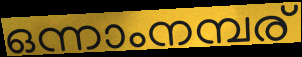
ഒന്നാംനമ്പര്